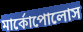
মার্কোপোলোস